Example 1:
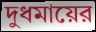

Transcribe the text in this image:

দুধমায়ের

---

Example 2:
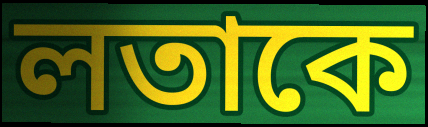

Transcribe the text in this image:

লতাকে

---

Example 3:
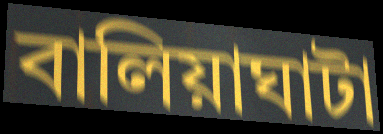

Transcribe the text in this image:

বালিয়াঘাটা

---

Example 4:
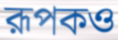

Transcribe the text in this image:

রূপকও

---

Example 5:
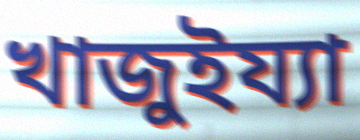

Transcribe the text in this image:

খাজুইয্যা